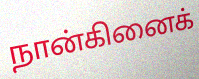
நான்கினைக்